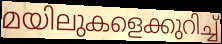
മയിലുകളെക്കുറിച്ച്